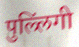
पुल्लिंगी